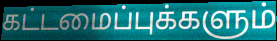
கட்டமைப்புக்களும்